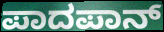
ಪಾದಪಾನ್